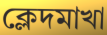
ক্লেদমাখা